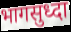
भागसुध्दा